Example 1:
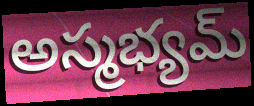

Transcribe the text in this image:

అస్మభ్యమ్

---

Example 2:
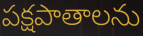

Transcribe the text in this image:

పక్షపాతాలను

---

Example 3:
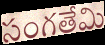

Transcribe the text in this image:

సంగతేమి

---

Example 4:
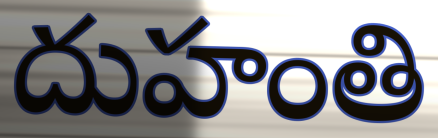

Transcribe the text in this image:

దుహంతి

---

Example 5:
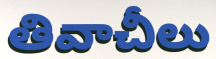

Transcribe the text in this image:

తివాచీలు